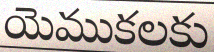
యెముకలకు